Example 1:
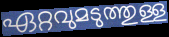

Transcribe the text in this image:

ഏറ്റവുമടുത്തുള്ള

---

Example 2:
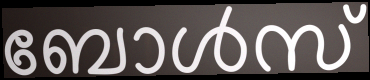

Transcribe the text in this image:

ബോൾസ്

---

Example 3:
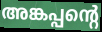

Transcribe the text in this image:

അങ്കപ്പന്റെ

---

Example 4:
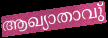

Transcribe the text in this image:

ആഖ്യാതാവു്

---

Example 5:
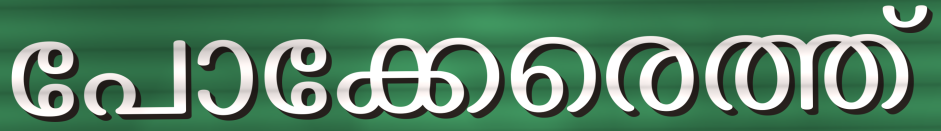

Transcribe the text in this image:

പോക്കേരെത്ത്